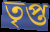
তৃপ্ত